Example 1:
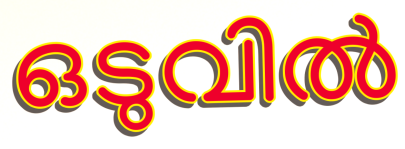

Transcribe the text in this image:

ഒടുവിൽ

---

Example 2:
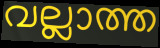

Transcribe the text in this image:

വല്ലാത്ത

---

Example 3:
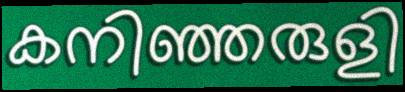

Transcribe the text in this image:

കനിഞ്ഞരുളി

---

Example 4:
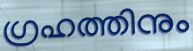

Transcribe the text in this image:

ഗ്രഹത്തിനും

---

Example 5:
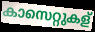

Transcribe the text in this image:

കാസെറ്റുകള്